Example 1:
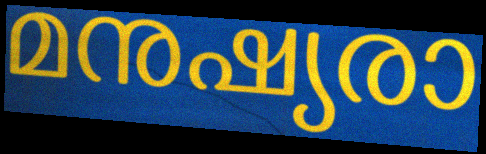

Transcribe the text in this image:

മനുഷ്യരാ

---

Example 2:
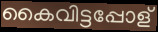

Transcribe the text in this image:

കൈവിട്ടപ്പോള്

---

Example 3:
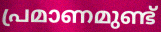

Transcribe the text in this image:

പ്രമാണമുണ്ട്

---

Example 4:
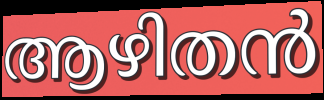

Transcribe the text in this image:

ആഴിതൻ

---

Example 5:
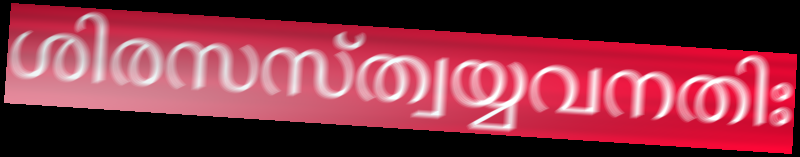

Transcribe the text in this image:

ശിരസസ്ത്വയ്യവനതിഃ